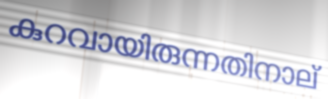
കുറവായിരുന്നതിനാല്